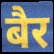
बैर